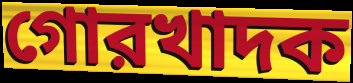
গোরখাদক